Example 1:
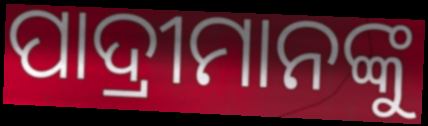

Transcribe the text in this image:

ପାଦ୍ରୀମାନଙ୍କୁ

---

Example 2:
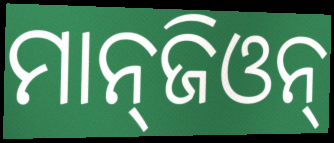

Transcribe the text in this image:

ମାନ୍‌ଜିଓନ୍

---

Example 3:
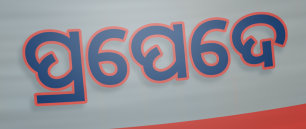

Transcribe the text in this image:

ପ୍ରପେଦେ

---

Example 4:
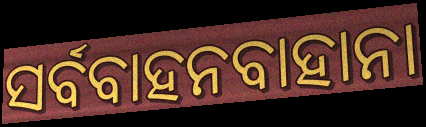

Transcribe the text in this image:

ସର୍ବବାହନବାହାନା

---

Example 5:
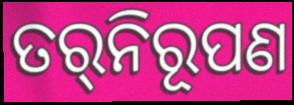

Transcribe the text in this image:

ତର୍‌ନିରୂପଣ